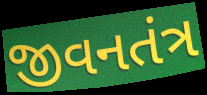
જીવનતંત્ર